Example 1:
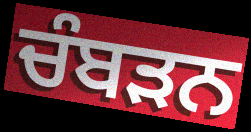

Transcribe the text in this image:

ਚੰਬੜਨ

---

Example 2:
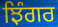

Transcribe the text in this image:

ਝਿੰਗਰ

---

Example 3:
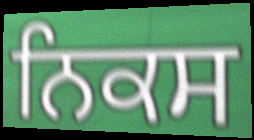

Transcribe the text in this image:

ਨਿਕਸ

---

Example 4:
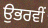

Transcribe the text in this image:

ਉਭਰਵੀਂ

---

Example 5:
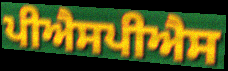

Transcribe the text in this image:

ਪੀਐਸਪੀਐਸ